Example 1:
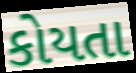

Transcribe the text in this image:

કોયતા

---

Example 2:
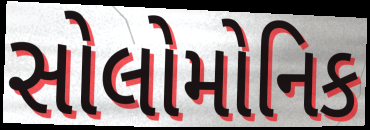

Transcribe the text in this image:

સોલોમોનિક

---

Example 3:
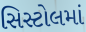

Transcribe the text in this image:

સિસ્ટોલમાં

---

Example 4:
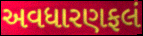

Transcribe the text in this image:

અવધારણફલં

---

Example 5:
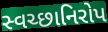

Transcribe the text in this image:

સ્વચ્છાનિરોપ